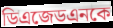
ডিএজেডএনকে